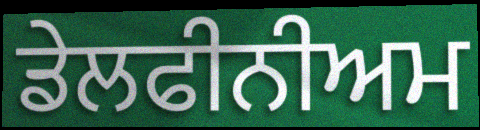
ਡੇਲਫੀਨੀਅਮ